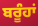
ਬਰੂੰਹਾਂ